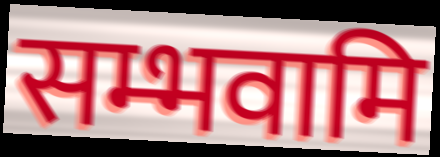
सम्भवामि